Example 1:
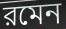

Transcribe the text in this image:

রমেন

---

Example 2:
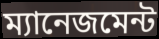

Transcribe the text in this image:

ম্যানেজমেন্ট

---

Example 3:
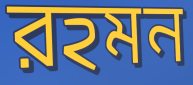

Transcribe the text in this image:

রহমন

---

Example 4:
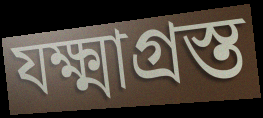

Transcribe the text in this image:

যক্ষ্মাগ্রস্ত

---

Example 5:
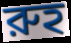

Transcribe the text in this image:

রুহ